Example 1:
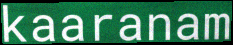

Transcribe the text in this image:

kaaranam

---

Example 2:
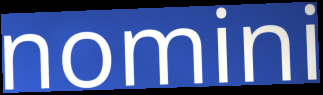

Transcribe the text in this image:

nomini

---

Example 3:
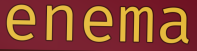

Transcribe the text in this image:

enema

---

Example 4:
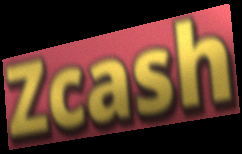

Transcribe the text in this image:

Zcash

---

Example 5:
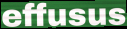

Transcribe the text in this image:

effusus